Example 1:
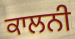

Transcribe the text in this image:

ਕਾਲਨੀ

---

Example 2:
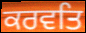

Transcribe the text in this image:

ਕਰਵਤਿ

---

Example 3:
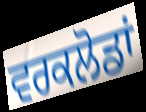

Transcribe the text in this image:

ਵਰਕਲੋਡਾਂ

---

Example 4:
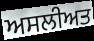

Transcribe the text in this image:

ਅਸਲੀਅਤ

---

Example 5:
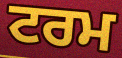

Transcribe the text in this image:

ਟਰਮ